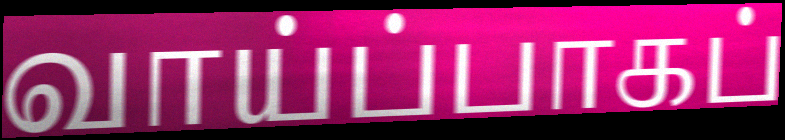
வாய்ப்பாகப்